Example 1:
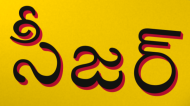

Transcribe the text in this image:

సీజర్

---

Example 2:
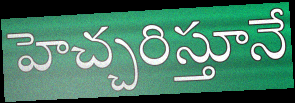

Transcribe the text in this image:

హెచ్చరిస్తూనే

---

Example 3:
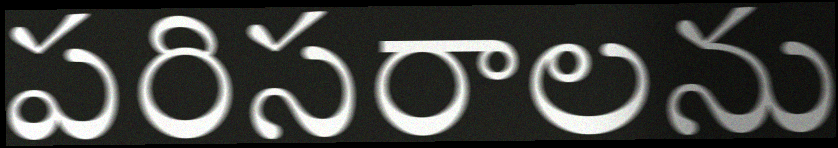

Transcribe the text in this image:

పరిసరాలను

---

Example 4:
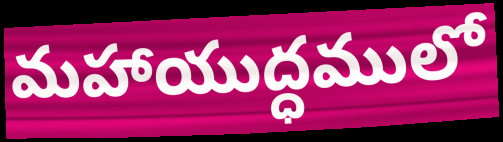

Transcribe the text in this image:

మహాయుద్ధములో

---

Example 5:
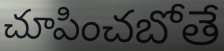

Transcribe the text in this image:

చూపించబోతే